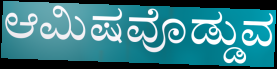
ಆಮಿಷವೊಡ್ಡುವ